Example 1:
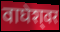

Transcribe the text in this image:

वाघेश्वर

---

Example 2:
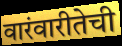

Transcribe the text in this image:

वारंवारीतेची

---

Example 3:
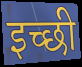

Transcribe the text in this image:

इच्छी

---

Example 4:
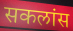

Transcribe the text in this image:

सकलांस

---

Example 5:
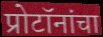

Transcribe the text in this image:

प्रोटॉनांचा